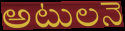
అటులనె